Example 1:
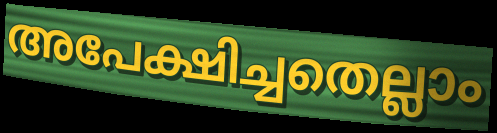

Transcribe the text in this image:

അപേക്ഷിച്ചതെല്ലാം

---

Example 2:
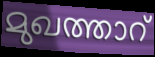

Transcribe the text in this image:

മുഖത്താറ്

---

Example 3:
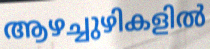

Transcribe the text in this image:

ആഴച്ചുഴികളിൽ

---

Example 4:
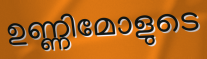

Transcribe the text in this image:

ഉണ്ണിമോളുടെ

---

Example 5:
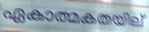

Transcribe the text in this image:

ഏകാത്മകതയില്